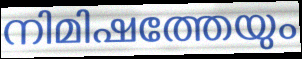
നിമിഷത്തേയും